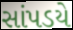
સાંપડયે